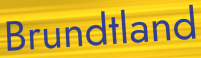
Brundtland